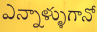
ఎన్నాళ్ళుగానో